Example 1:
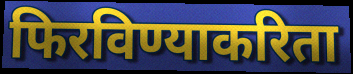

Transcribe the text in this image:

फिरविण्याकरिता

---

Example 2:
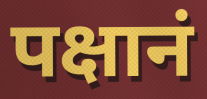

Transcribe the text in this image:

पक्षानं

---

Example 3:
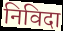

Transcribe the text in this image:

निविदा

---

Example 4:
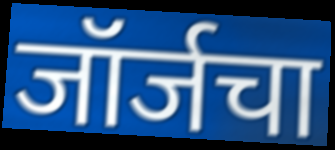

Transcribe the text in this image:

जॉर्जचा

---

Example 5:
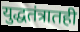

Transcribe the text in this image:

युद्धतंत्रातही